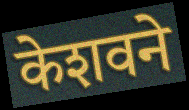
केशवने